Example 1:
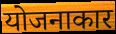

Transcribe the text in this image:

योजनाकार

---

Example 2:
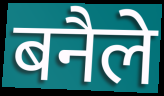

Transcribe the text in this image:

बनैले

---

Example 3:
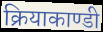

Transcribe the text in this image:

क्रियाकाण्डी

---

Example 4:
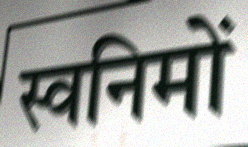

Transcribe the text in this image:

स्वनिमों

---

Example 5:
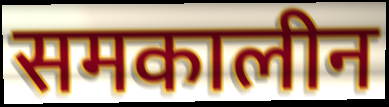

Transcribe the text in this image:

समकालीन